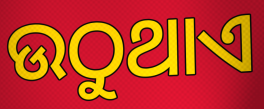
ଉଠୁଥାଏ